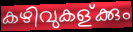
കഴിവുകള്ക്കും